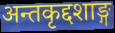
अन्तकृद्दशाङ्ग